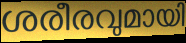
ശരീരവുമായി